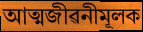
আত্মজীৱনীমূলক